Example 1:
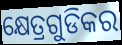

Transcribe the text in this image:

କ୍ଷେତ୍ରଗୁଡିକର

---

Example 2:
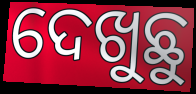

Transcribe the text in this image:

ଦେଖୁଛୁ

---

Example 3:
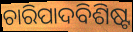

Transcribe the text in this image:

ଚାରିପାଦବିଶିଷ୍ଟ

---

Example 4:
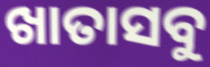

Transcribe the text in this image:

ଖାତାସବୁ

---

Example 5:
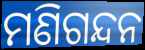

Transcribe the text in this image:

ମଣିଗନ୍ଦନ